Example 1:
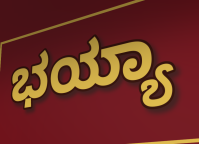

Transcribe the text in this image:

ಭಯ್ಯಾ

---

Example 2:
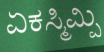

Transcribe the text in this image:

ಏಕಸ್ಮಿಮ್ಪಿ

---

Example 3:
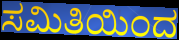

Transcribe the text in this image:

ಸಮಿತಿಯಿಂದ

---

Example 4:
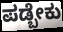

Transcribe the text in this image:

ಪಡ್ಬೇಕು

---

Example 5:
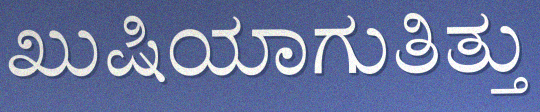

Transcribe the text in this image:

ಖುಷಿಯಾಗುತಿತ್ತು